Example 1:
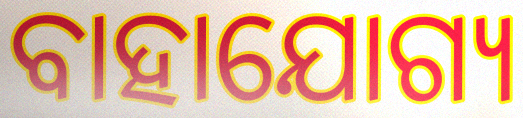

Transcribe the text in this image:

ବାହାଯୋଗ୍ୟ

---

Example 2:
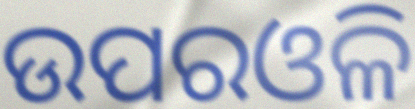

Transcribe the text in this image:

ଉପରଓଳି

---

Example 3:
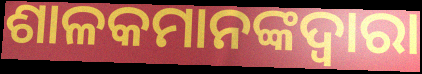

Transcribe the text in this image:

ଶାଳକମାନଙ୍କଦ୍ୱାରା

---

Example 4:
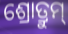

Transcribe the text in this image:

ଶ୍ରୋତ୍ରୁମ୍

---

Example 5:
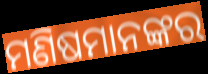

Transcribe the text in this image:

ମଣିଷମାନଙ୍କର